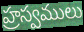
హ్రస్వములు